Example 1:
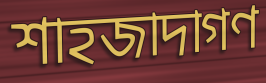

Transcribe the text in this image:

শাহজাদাগণ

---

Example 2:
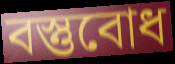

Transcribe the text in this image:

বস্তুবোধ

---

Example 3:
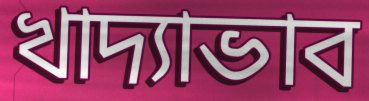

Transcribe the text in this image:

খাদ্যাভাব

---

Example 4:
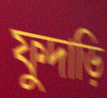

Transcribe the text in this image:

ফুদাড়ি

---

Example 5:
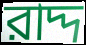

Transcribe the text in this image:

রাদ্দ